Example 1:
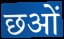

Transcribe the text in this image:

छओं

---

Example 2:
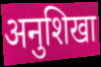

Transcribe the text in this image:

अनुशिखा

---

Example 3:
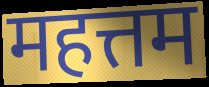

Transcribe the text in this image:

महत्तम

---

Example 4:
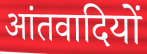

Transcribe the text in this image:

आंतवादियों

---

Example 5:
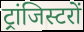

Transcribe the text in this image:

ट्रांजिस्टरों